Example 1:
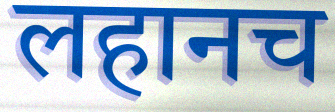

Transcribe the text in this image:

लहानच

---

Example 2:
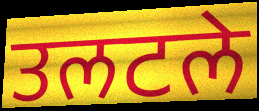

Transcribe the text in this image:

उलटले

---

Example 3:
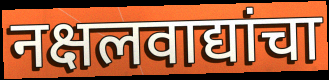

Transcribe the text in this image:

नक्षलवाद्यांचा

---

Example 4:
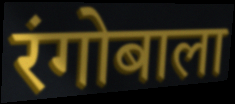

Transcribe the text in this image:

रंगोबाला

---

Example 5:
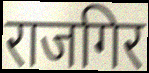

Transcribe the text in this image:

राजगिर